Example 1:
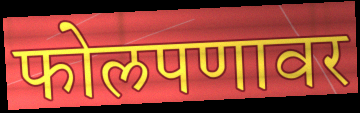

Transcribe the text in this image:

फोलपणावर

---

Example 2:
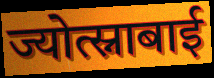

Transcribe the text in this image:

ज्योत्स्नाबाई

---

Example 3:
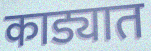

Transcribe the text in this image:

काड्यात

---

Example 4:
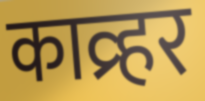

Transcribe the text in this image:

काव्र्हर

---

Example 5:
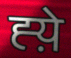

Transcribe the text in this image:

ह्य़े